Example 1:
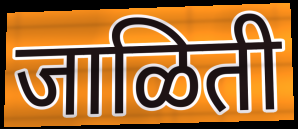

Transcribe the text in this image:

जाळिती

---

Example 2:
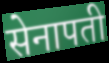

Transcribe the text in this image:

सेनापती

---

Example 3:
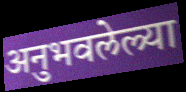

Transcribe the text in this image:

अनुभवलेल्या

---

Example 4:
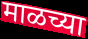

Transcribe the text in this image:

माळच्या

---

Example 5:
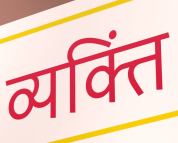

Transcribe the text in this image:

व्यक्तिं